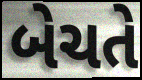
બેચતે